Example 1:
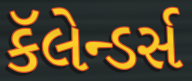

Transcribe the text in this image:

કૅલેન્ડર્સ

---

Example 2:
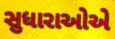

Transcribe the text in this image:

સુધારાઓએ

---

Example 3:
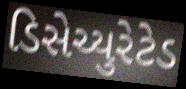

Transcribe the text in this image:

ડિસેચ્યુરેટેડ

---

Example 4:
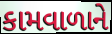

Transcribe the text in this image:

કામવાળાને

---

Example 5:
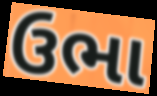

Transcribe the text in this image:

ઉભા